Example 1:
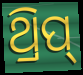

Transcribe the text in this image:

ଥ୍ରିପ୍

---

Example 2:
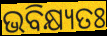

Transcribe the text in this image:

ଭବିକ୍ଷ୍ୟତଃ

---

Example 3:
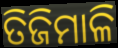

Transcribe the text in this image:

ତିଜିମାଳି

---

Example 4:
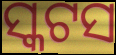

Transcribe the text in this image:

ସ୍କଟସ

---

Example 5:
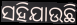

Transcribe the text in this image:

ସହିଯାଉଛି